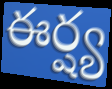
ఈర్ష్య